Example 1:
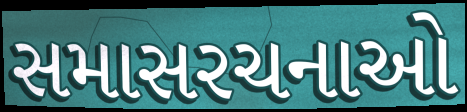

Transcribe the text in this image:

સમાસરચનાઓ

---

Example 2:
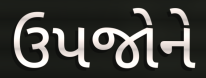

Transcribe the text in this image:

ઉપજોને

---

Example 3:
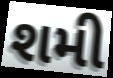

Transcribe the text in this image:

શમી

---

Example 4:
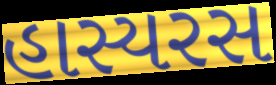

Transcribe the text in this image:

હાસ્યરસ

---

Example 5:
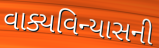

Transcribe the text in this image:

વાક્યવિન્યાસની